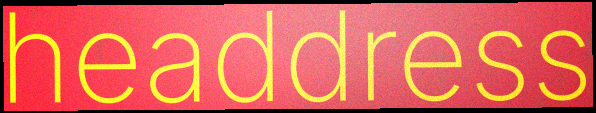
headdress